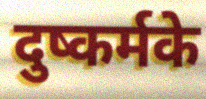
दुष्कर्मके